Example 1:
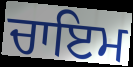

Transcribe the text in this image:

ਚਾਇਮ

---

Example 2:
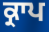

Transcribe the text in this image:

ਕ੍ਰਾਪ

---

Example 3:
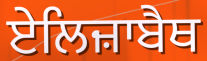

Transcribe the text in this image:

ਏਲਿਜ਼ਾਬੈਥ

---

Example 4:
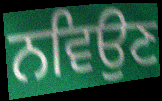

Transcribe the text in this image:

ਨਵਿਉਣ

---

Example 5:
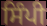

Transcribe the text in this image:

ਸਿੰਪੀ